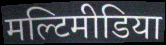
मल्टिमीडिया